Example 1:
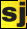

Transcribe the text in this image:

sj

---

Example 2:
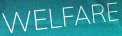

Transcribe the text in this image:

WELFARE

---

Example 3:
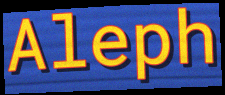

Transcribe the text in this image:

Aleph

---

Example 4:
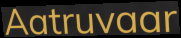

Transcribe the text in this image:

Aatruvaar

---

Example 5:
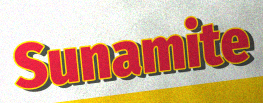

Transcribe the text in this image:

Sunamite